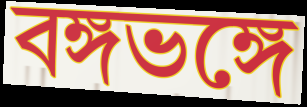
বঙ্গভঙ্গে